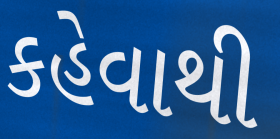
કહેવાથી